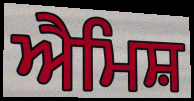
ਐਮਿਸ਼